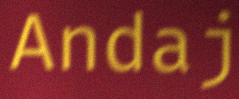
Andaj